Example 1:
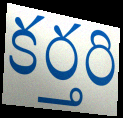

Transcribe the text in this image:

కర్తరి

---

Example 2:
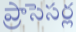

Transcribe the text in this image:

ప్రాసెసర్ల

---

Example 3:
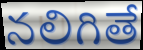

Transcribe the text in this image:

నలిగితే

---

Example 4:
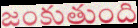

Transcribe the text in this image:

జంకుతుంది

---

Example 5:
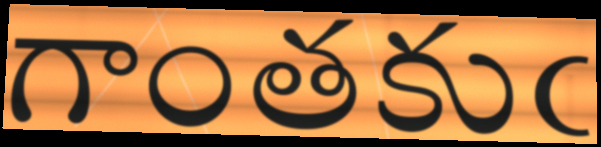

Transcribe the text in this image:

గాంతకుఁ